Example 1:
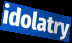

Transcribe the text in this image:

idolatry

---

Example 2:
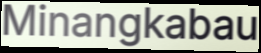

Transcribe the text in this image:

Minangkabau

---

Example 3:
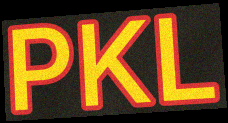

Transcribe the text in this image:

PKL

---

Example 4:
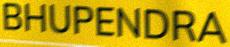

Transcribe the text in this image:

BHUPENDRA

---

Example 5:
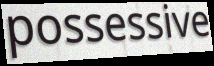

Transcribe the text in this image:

possessive